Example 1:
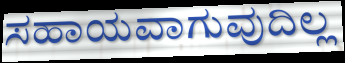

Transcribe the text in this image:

ಸಹಾಯವಾಗುವುದಿಲ್ಲ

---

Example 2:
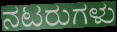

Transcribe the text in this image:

ನಟರುಗಳು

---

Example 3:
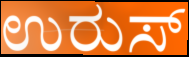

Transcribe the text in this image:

ಉರುಸ್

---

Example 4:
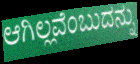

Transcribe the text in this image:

ಆಗಿಲ್ಲವೆಂಬುದನ್ನು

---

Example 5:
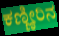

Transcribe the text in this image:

ಕಣ್ಣೀರಿನ